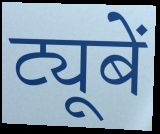
ट्यूबें